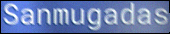
Sanmugadas